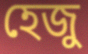
হেজু